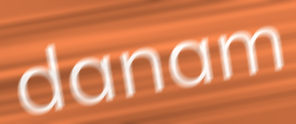
danam